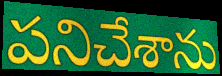
పనిచేశాను